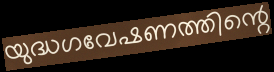
യുദ്ധഗവേഷണത്തിന്റെ